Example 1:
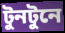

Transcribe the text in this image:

টুনটুনে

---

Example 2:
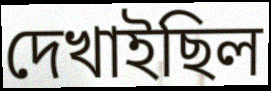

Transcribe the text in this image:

দেখাইছিল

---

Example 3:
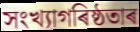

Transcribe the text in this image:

সংখ্যাগৰিষ্ঠতাৰ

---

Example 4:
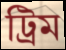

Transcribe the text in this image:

ট্ৰিম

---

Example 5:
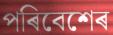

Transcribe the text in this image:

পৰিবেশেৰ